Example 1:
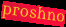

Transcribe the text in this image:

proshno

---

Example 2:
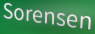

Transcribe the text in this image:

Sorensen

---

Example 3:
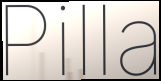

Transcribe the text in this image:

Pilla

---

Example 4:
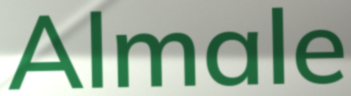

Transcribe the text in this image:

Almale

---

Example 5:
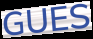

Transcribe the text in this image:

GUES